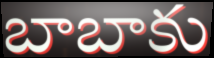
బాబాకు